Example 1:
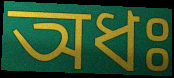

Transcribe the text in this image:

অধঃ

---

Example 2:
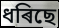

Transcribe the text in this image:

ধৰিছে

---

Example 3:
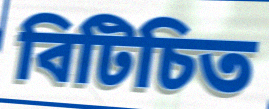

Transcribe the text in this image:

বিটিচিত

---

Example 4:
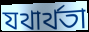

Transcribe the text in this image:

যথাৰ্থতা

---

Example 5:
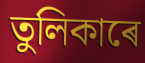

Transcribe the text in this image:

তুলিকাৰে